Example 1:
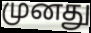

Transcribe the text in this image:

முனது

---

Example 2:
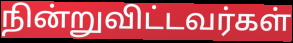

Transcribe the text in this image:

நின்றுவிட்டவர்கள்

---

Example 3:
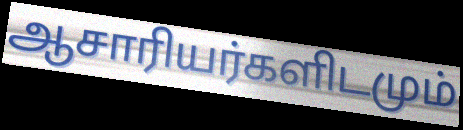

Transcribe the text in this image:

ஆசாரியர்களிடமும்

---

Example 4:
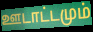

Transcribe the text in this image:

ஊடாட்டமும்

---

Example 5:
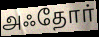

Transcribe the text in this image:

அஃதோர்